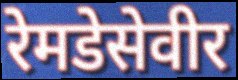
रेमडेसेवीर